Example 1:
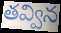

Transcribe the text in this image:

తవ్విన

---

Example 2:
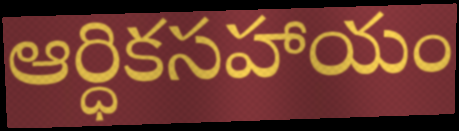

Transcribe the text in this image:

ఆర్ధికసహాయం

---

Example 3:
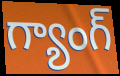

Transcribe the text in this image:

గ్యాంగ్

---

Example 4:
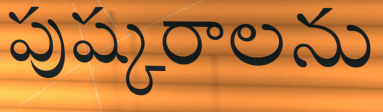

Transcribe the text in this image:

పుష్కరాలను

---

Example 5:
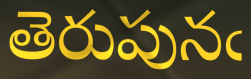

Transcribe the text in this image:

తెరుపునఁ